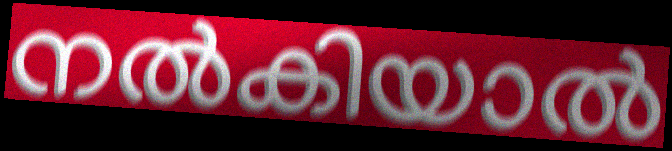
നൽകിയാൽ